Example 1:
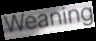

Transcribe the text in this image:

Weaning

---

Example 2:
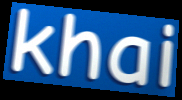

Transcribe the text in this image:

khai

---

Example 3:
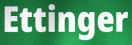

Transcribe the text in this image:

Ettinger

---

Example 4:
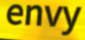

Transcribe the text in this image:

envy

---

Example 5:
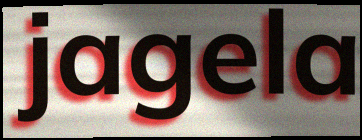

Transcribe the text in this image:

jagela